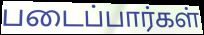
படைப்பார்கள்